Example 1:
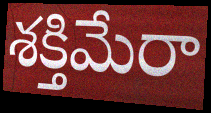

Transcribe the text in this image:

శక్తిమేరా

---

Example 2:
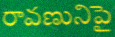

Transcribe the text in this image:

రావణునిపై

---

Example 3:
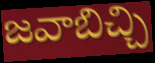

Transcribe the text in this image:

జవాబిచ్చి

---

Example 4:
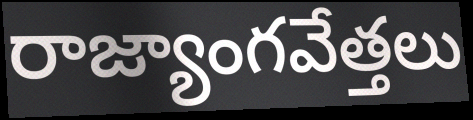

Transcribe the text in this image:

రాజ్యాంగవేత్తలు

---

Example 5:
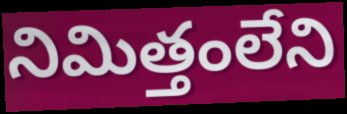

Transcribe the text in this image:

నిమిత్తంలేని